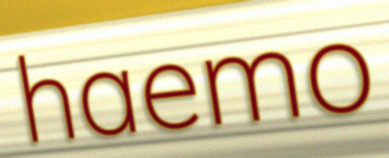
haemo